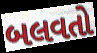
બલવતો